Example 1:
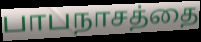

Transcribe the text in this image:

பாபநாசத்தை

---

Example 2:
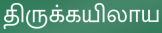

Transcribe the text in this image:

திருக்கயிலாய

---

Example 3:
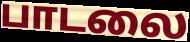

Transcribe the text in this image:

பாடலை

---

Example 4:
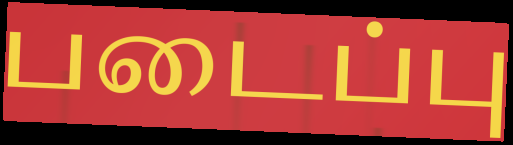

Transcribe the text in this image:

படைப்பு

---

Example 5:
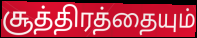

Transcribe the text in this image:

சூத்திரத்தையும்